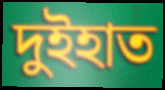
দুইহাত